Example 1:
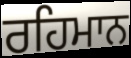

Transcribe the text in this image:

ਰਹਿਮਾਨ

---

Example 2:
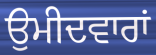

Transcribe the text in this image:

ਉਮੀਦਵਾਰਾਂ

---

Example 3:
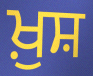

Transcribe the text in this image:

ਖ਼ੁਸ਼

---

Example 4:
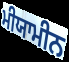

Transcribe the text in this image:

ਮੀਯਾਮੀਨ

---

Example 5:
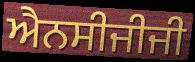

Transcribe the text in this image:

ਐਨਸੀਜੀਜੀ